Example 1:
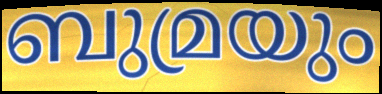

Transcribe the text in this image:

ബുമ്രയും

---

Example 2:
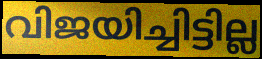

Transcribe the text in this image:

വിജയിച്ചിട്ടില്ല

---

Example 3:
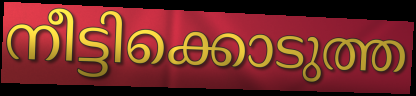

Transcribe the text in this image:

നീട്ടിക്കൊടുത്ത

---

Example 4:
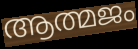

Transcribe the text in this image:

ആത്മജം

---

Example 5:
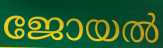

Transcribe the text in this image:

ജോയൽ